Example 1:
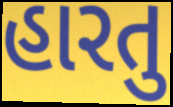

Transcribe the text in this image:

હારતુ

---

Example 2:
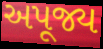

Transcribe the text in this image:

અપૂજ્ય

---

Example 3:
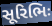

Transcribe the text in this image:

સૂરિભિઃ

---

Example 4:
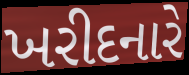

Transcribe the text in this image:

ખરીદનારે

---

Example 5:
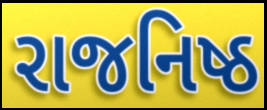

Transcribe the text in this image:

રાજનિષ્ઠ